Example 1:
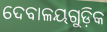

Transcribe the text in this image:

ଦେବାଳୟଗୁଡ଼ିକ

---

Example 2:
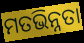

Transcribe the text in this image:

ମତଭିନ୍ନତା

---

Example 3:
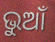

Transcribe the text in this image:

ଭୁଆଁ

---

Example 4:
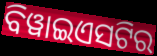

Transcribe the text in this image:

ବିୱାଇଏସଟିର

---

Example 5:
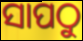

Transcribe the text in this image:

ସାପଠୁ